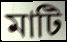
মাটি